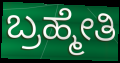
ಬ್ರಹ್ಮೇತಿ